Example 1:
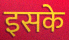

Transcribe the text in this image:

इसके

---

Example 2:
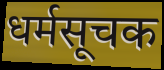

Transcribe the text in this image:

धर्मसूचक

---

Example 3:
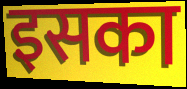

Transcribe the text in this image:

इसका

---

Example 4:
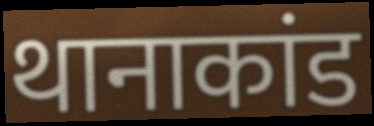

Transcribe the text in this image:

थानाकांड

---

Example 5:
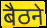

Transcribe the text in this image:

बैठने